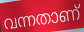
വന്നതാണ്